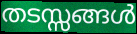
തടസ്സങ്ങൾ